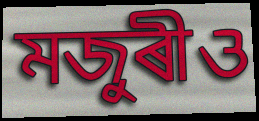
মজুৰীও